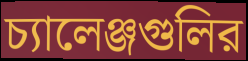
চ্যালেঞ্জগুলির